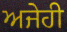
ਅਜੇਹੀ